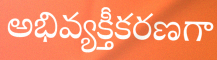
అభివ్యక్తీకరణగా